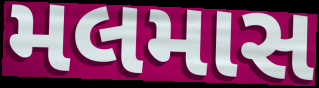
મલમાસ